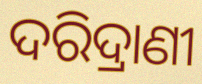
ଦରିଦ୍ରାଣୀ